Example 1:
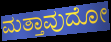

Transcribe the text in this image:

ಮತ್ತಾವುದೋ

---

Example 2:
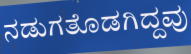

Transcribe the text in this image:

ನಡುಗತೊಡಗಿದ್ದವು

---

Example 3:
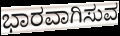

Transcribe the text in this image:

ಭಾರವಾಗಿಸುವ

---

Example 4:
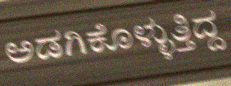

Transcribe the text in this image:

ಅಡಗಿಕೊಳ್ಳುತ್ತಿದ್ದ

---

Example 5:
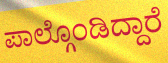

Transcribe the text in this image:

ಪಾಲ್ಗೊಂಡಿದ್ದಾರೆ